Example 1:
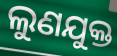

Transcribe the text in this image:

ଲୁଣଯୁକ୍ତ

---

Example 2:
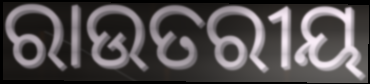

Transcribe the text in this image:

ରାଉତରୀୟ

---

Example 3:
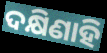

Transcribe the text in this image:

ଦକ୍ଷିଣାହି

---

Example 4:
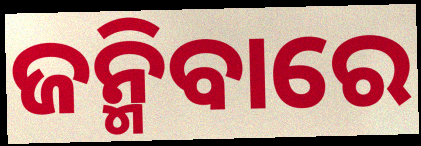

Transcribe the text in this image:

ଜନ୍ମିବାରେ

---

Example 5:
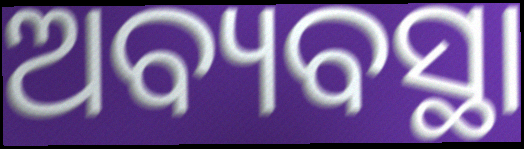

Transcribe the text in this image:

ଅବ୍ୟବସ୍ଥା